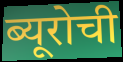
ब्यूरोची